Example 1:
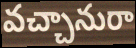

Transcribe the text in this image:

వచ్చానురా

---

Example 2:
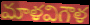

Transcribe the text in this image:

మాళవిగౌళ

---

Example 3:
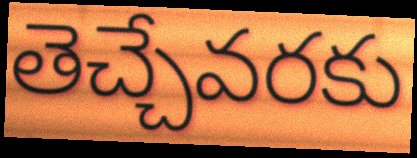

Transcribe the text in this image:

తెచ్చేవరకు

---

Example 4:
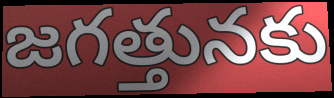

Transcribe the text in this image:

జగత్తునకు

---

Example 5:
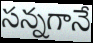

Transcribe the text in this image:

సన్నగానే